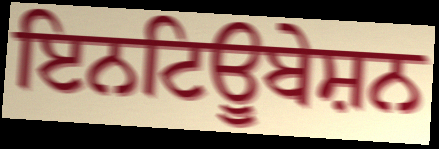
ਇਨਟਿਊਬੇਸ਼ਨ